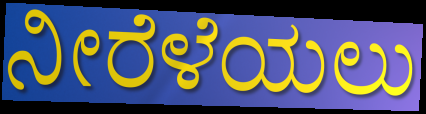
ನೀರೆಳೆಯಲು